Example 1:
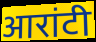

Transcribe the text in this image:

आरांटी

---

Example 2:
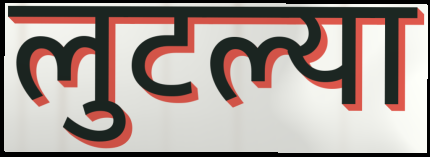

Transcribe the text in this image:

लुटल्या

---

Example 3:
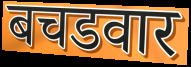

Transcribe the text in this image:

बचडवार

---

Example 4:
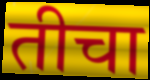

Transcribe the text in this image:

तीचा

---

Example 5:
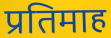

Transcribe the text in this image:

प्रतिमाह